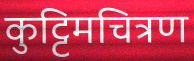
कुट्टिमचित्रण